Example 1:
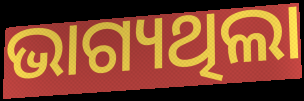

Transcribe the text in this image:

ଭାଗ୍ୟଥିଲା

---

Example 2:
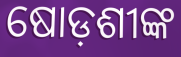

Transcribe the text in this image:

ଷୋଡ଼ଶୀଙ୍କ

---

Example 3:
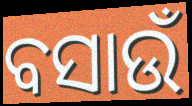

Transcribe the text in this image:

ବସାଉଁ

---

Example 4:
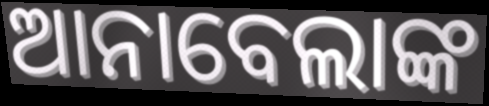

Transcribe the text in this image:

ଆନାବେଲାଙ୍କ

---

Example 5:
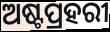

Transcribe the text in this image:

ଅଷ୍ଟପ୍ରହରୀ